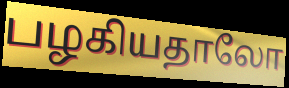
பழகியதாலோ